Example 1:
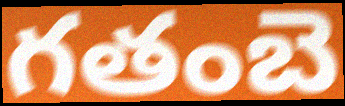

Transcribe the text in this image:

గతంబె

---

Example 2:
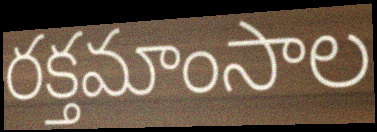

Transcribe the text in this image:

రక్తమాంసాల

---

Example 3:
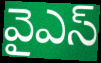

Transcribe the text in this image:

వైఎస్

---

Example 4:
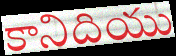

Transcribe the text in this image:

కానిదియు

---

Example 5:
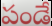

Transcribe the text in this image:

పండే